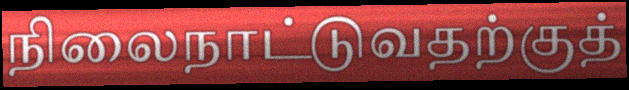
நிலைநாட்டுவதற்குத்